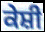
ਕੇਸ਼ੀ